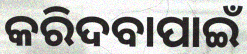
କରିଦବାପାଇଁ